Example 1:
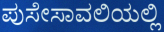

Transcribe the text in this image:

ಪುಸೇಸಾವಲಿಯಲ್ಲಿ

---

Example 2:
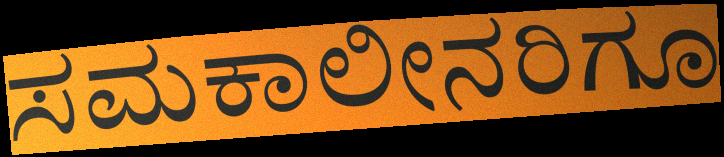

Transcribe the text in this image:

ಸಮಕಾಲೀನರಿಗೂ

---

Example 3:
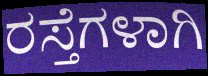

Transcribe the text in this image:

ರಸ್ತೆಗಳಾಗಿ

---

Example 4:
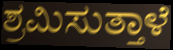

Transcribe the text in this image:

ಶ್ರಮಿಸುತ್ತಾಳೆ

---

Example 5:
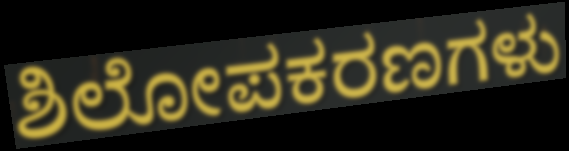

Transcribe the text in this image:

ಶಿಲೋಪಕರಣಗಳು